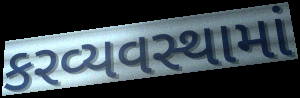
કરવ્યવસ્થામાં